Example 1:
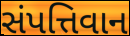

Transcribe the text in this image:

સંપત્તિવાન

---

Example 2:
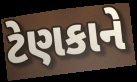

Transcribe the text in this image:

ટેણકાને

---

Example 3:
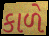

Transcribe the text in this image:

કાળે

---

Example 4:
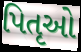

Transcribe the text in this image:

પિતૃઓ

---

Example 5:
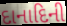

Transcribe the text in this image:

દાનાદિની